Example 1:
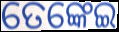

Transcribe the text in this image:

ତେଙ୍କେଇ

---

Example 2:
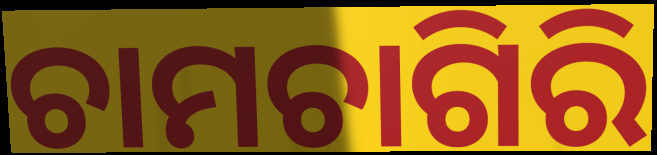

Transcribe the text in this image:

ଚାମଚାଗିରି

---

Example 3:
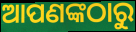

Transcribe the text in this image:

ଆପଣଙ୍କଠାରୁ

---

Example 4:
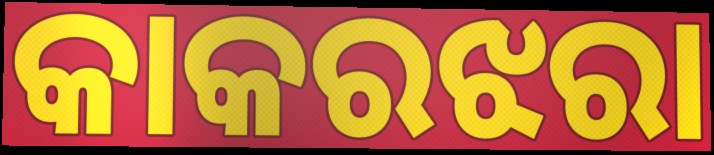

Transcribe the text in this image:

କାକରଝରା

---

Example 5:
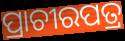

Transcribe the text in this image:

ପ୍ରାଚୀରପତ୍ର